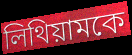
লিথিয়ামকে